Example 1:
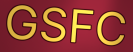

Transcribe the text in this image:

GSFC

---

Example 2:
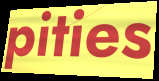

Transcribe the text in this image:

pities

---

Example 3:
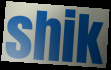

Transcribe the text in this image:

shik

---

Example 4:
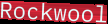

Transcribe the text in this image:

Rockwool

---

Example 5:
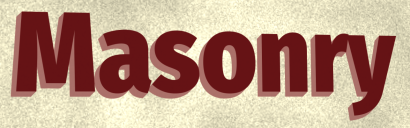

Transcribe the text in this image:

Masonry